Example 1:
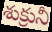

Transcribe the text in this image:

శుక్రునీ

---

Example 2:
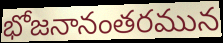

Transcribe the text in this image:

భోజనానంతరమున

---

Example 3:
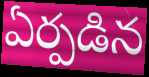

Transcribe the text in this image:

ఏర్పడిన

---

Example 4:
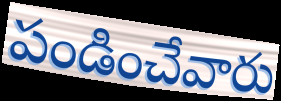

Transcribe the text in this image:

పండించేవారు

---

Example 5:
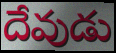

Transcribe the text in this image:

దేవుడు